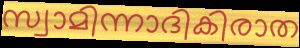
സ്വാമിന്നാദികിരാത